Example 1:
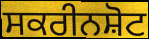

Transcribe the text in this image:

ਸਕਰੀਨਸ਼ੋਟ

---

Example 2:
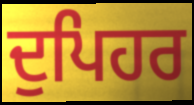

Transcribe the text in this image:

ਦੁਪਿਹਰ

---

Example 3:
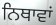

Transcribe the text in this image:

ਨਿਥਾਵਾਂ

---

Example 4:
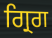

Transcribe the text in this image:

ਗ੍ਰਿਗ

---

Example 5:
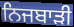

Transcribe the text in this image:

ਨਿਜਬਾੜੀ